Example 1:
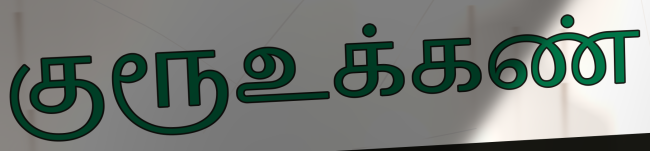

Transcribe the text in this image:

குரூஉக்கண்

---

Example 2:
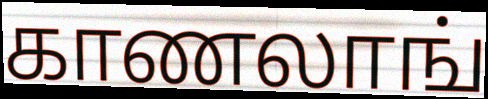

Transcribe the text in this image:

காணலாங்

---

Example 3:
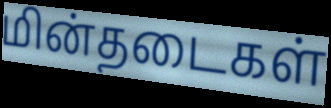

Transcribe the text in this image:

மின்தடைகள்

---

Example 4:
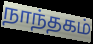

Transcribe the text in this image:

நாந்தகம்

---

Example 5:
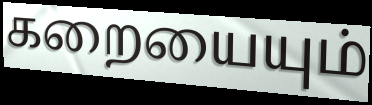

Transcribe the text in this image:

கறையையும்